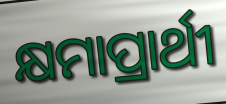
କ୍ଷମାପ୍ରାର୍ଥୀ